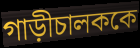
গাড়ীচালককে